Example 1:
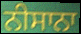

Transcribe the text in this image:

ਨੀਸਾਨਾ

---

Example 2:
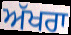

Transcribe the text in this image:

ਅੱਖਰਾ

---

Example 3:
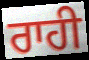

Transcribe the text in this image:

ਰਾਹੀ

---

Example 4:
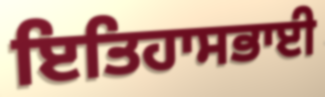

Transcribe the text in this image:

ਇਤਿਹਾਸਭਾਈ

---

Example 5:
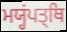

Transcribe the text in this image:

ਮਯ੍ਹਂਪਤ੍ਥਿ